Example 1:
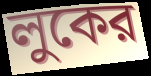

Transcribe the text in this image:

লুকের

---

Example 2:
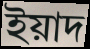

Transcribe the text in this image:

ইয়াদ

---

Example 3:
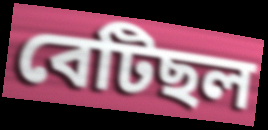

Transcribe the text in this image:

বেটিছল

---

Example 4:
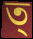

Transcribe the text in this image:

ত্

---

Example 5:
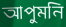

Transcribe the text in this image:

আপুমনি